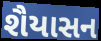
શૈયાસન